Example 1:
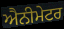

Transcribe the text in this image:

ਐਨੀਮੇਟਰ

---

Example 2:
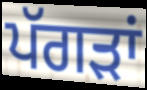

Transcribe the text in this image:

ਪੱਗੜਾਂ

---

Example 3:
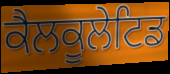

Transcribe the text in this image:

ਕੈਲਕੂਲੇਟਿਡ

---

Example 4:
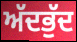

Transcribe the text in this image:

ਅੱਦਭੁੱਦ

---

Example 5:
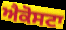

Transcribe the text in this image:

ਐਕੋਸਟਾ